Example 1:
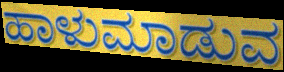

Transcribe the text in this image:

ಹಾಳುಮಾಡುವ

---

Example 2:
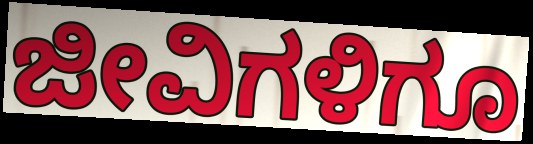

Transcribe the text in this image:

ಜೀವಿಗಳಿಗೂ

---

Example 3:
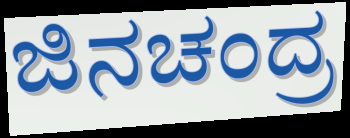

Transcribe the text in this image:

ಜಿನಚಂದ್ರ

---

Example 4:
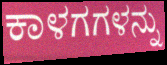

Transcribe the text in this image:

ಕಾಳಗಗಳನ್ನು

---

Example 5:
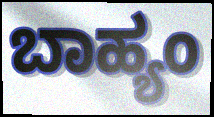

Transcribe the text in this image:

ಬಾಹ್ಯಂ